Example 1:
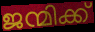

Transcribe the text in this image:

ജന്മിക്ക്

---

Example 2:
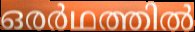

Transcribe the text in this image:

ഒരർഥത്തിൽ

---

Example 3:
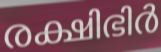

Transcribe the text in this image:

രക്ഷിഭിർ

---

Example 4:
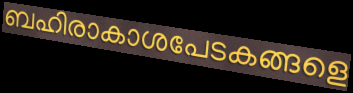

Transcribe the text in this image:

ബഹിരാകാശപേടകങ്ങളെ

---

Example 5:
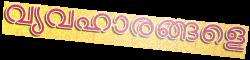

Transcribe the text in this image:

വ്യവഹാരങ്ങളെ